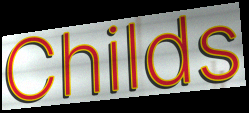
Childs